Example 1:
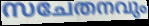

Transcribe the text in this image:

സചേതനവും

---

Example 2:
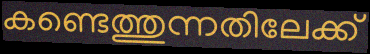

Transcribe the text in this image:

കണ്ടെത്തുന്നതിലേക്ക്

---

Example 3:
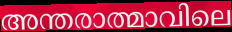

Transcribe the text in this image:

അന്തരാത്മാവിലെ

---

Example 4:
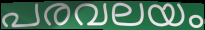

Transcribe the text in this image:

പരവലയം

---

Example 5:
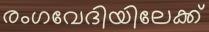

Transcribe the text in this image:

രംഗവേദിയിലേക്ക്